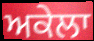
ਅਕੇਲਾ